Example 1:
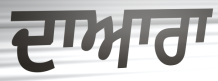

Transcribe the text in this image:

ਦਾਆਰਾ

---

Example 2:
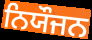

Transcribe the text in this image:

ਨਿਯੌਜਨ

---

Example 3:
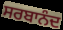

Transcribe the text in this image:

ਸਰਬਾਨੰਦ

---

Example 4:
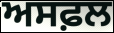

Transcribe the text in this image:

ਅਸਫ਼ਲ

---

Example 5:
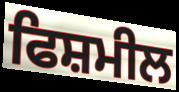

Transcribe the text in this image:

ਫਿਸ਼ਮੀਲ